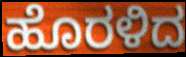
ಹೊರಳಿದ